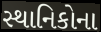
સ્થાનિકોના